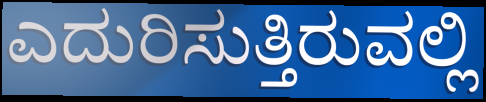
ಎದುರಿಸುತ್ತಿರುವಲ್ಲಿ